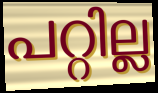
പറ്റില്ല